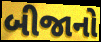
બીજાનો